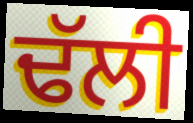
ਢੱਲੀ